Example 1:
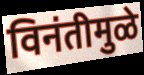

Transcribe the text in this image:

विनंतीमुळे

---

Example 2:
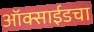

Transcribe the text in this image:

ऑक्साईडचा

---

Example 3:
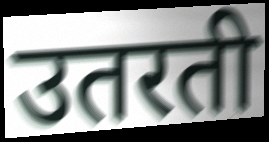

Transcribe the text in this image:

उतरती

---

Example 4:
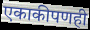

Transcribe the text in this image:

एकाकीपणही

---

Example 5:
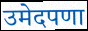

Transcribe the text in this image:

उमेदपणा